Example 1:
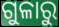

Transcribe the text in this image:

ଗୁଳାରୁ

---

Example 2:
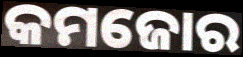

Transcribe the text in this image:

କମଜୋର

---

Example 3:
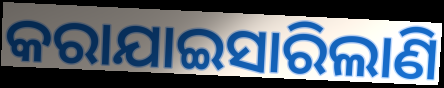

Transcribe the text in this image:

କରାଯାଇସାରିଲାଣି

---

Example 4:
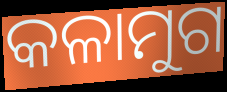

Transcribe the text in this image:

କଳାମୁଗ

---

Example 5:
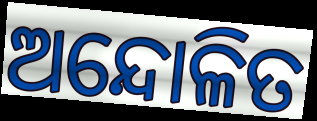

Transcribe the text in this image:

ଅନ୍ଦୋଳିତ